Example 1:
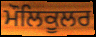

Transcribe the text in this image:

ਮੌਲਿਕੂਲਰ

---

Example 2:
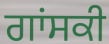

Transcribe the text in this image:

ਗਾਂਸਕੀ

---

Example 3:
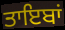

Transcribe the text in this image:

ਤਾਇਬਾਂ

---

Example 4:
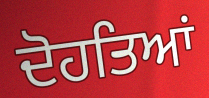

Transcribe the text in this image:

ਦੋਹਤਿਆਂ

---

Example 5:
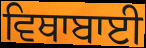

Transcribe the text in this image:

ਵਿਥਾਬਾਈ